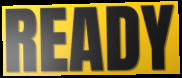
READY